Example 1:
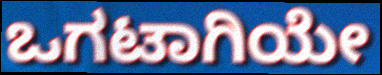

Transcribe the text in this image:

ಒಗಟಾಗಿಯೇ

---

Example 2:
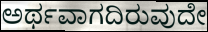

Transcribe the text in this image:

ಅರ್ಥವಾಗದಿರುವುದೇ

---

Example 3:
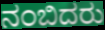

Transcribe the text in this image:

ನಂಬಿದರು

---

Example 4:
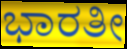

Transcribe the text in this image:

ಭಾರತೀ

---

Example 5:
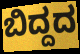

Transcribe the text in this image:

ಬಿದ್ದದ